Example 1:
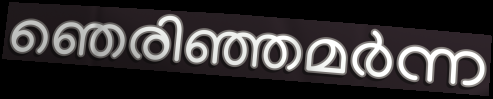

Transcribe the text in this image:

ഞെരിഞ്ഞമർന്ന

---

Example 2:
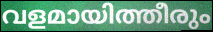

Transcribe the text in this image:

വളമായിത്തീരും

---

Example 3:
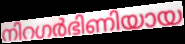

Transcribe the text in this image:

നിറഗർഭിണിയായ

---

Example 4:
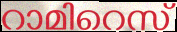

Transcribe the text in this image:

റാമിറെസ്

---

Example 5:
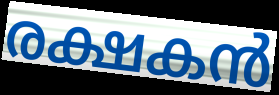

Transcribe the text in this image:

രക്ഷകൻ